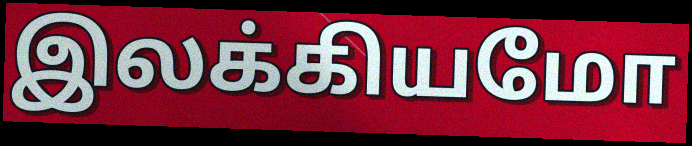
இலக்கியமோ